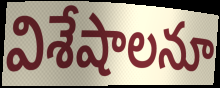
విశేషాలనూ